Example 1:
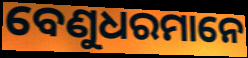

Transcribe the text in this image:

ବେଣୁଧରମାନେ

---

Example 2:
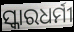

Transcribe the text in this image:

ସ୍କାରଧର୍ମୀ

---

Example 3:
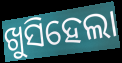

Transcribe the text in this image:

ଖୁସିହେଲା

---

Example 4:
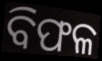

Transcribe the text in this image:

ବିଫଳ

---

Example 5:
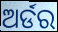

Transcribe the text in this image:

ଅର୍ଡର